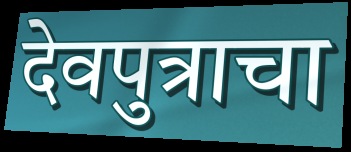
देवपुत्राचा